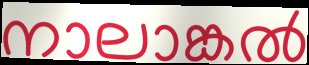
നാലാങ്കൽ